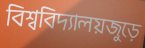
বিশ্ববিদ্যালয়জুড়ে